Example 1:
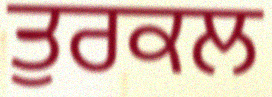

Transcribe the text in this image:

ਤੁਰਕਲ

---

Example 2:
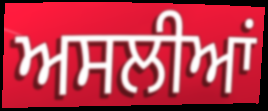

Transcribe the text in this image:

ਅਸਲੀਆਂ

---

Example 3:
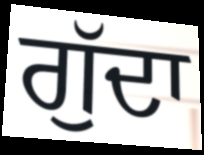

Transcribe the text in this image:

ਗੁੱਦਾ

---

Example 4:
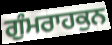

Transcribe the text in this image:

ਗੁੰਮਰਾਹਕੁਨ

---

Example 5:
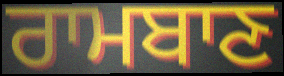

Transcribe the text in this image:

ਰਾਮਬਾਣ